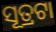
ସୂତ୍ରଟା